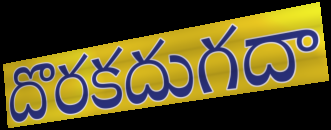
దొరకదుగదా